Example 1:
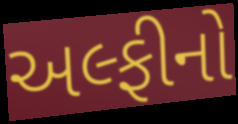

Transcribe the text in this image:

અલ્ફીનો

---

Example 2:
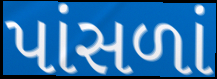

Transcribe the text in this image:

પાંસળાં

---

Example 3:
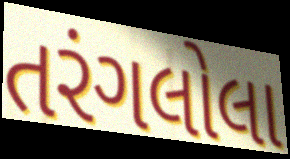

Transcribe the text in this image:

તરંગલોલા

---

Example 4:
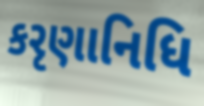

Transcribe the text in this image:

કરૃણાનિધિ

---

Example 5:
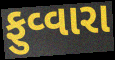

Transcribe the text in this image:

ફુવ્વારા